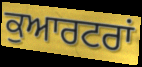
ਕੁਆਰਟਰਾਂ